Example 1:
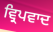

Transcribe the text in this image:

ਵ੍ਰਿਪਵਾਦ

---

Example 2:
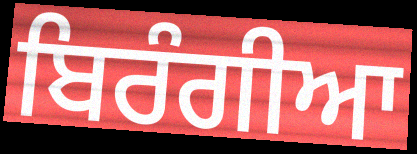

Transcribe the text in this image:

ਬਿਰੰਗੀਆ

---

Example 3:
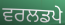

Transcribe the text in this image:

ਵਰਲਡਪੇ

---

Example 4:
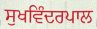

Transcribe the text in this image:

ਸੁਖਵਿੰਦਰਪਾਲ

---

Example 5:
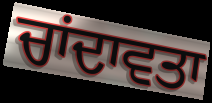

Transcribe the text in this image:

ਚਾਂਦਾਵਤਾ